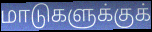
மாடுகளுக்குக்